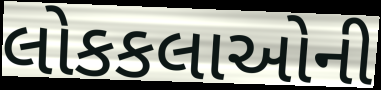
લોકકલાઓની